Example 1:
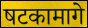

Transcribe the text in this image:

षटकामागे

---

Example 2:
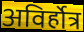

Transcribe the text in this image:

अविर्होत्र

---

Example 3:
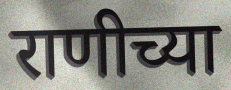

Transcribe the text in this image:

राणीच्या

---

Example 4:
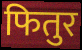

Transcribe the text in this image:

फितुर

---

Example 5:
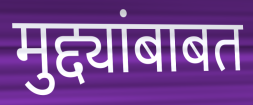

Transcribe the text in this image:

मुद्द्यांबाबत